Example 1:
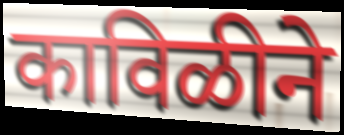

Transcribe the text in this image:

काविळीने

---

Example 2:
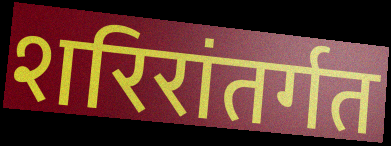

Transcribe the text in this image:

शरिरांतर्गत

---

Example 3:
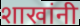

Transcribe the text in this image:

शाखांनी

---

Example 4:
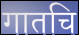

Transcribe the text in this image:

गातचि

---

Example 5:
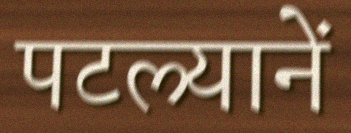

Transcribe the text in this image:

पटल्यानें